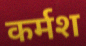
कर्मश